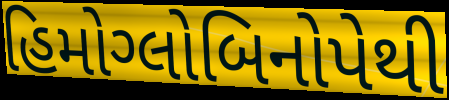
હિમોગ્લોબિનોપેથી